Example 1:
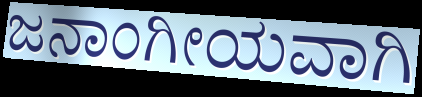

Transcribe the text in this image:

ಜನಾಂಗೀಯವಾಗಿ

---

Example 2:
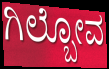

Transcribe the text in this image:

ಗಿಲ್ಬೋವ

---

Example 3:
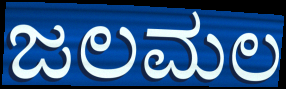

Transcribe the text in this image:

ಜಲಮಲ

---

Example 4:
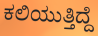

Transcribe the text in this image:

ಕಲಿಯುತ್ತಿದ್ದೆ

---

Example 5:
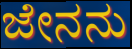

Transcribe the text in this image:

ಜೇನನು